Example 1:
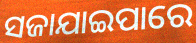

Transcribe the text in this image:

ସଜାଯାଇପାରେ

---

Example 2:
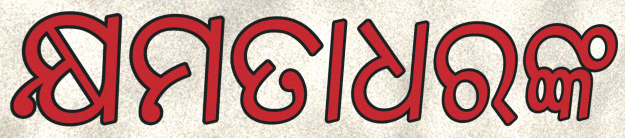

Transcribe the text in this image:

କ୍ଷମତାଧରଙ୍କ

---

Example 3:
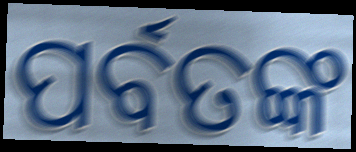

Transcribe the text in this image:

ପର୍ବତଙ୍କ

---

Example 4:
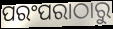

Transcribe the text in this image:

ପରଂପରାଠାରୁ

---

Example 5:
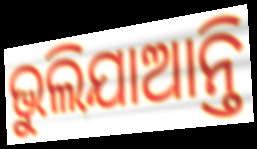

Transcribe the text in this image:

ଭୁଲିଯାଆନ୍ତି